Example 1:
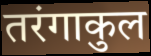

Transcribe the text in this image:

तरंगाकुल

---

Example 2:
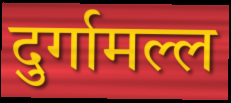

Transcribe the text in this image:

दुर्गामल्ल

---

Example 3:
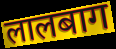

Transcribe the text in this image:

लालबाग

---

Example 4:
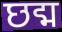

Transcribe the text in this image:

छद्म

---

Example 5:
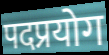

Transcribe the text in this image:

पदप्रयोग